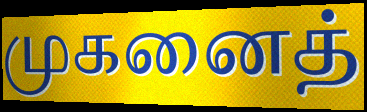
முகனைத்